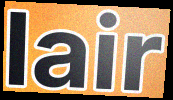
lair